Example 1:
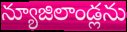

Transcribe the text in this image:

న్యూజిలాండ్లను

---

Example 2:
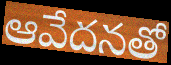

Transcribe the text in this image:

ఆవేదనతో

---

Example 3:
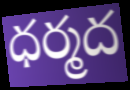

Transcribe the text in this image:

ధర్మద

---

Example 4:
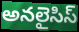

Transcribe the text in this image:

అనలైసిస్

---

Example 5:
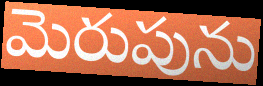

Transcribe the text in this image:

మెరుపును